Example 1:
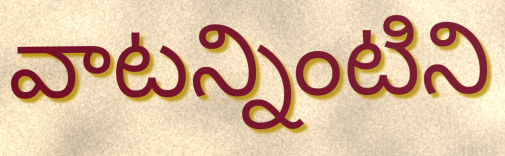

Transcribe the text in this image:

వాటన్నింటిని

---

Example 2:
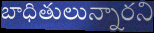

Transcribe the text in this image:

బాధితులున్నారని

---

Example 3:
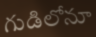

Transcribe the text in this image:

గుడిలోనూ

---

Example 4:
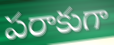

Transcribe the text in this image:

పరాకుగా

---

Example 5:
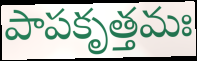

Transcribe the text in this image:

పాపకృత్తమః